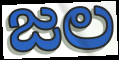
జల